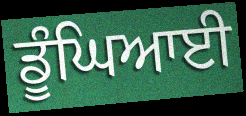
ਡੂੰਘਿਆਈ